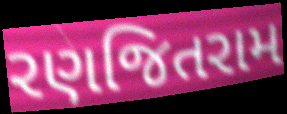
રણજિતરામ